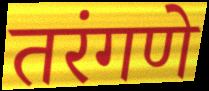
तरंगणे